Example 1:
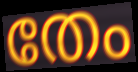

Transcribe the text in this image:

തേം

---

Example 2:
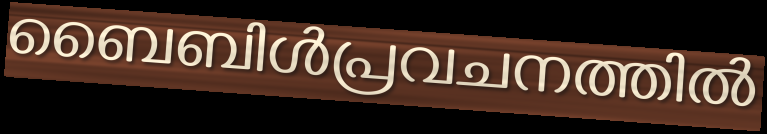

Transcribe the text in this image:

ബൈബിൾപ്രവചനത്തിൽ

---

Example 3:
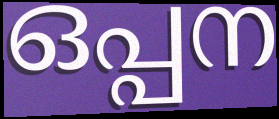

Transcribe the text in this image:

ഒപ്പന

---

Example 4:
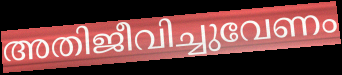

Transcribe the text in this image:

അതിജീവിച്ചുവേണം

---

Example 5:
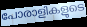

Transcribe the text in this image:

പോരാളികളുടെ